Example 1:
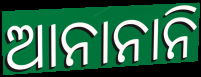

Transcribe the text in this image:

ଆନାନାନି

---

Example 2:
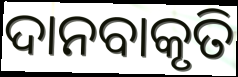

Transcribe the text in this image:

ଦାନବାକୃତି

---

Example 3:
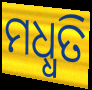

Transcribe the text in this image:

ମଧ୍ଧତି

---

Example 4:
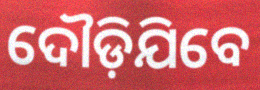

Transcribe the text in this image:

ଦୌଡ଼ିଯିବେ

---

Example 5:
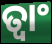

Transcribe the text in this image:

ତ୍ୱାଂ